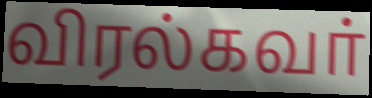
விரல்கவர்